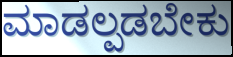
ಮಾಡಲ್ಪಡಬೇಕು